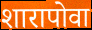
शारापोवा